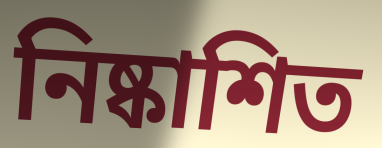
নিষ্কাশিত